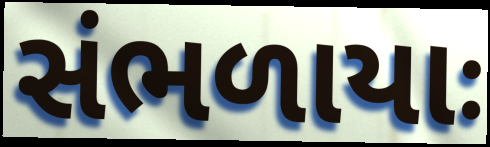
સંભળાયાઃ